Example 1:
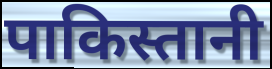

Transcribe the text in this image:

पाकिस्तानी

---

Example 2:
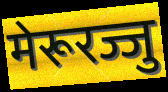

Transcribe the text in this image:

मेरूरज्जु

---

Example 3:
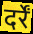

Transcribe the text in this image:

दर्रें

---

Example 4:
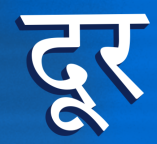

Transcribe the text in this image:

दूर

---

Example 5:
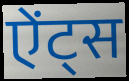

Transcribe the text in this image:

ऐंट्स